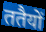
ततैयों